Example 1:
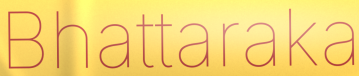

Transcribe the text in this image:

Bhattaraka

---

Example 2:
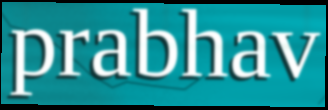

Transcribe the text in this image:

prabhav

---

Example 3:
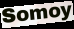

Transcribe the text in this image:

Somoy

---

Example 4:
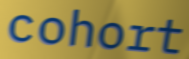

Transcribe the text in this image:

cohort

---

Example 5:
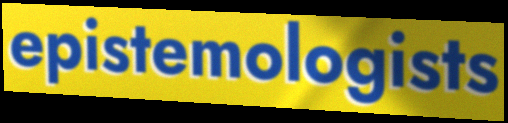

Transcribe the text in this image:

epistemologists